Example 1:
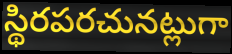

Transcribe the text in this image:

స్థిరపరచునట్లుగా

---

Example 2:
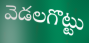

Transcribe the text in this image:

వెడలగొట్టు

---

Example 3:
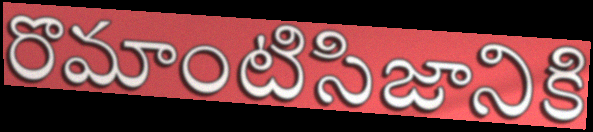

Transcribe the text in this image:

రొమాంటిసిజానికి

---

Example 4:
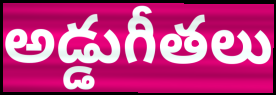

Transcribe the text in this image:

అడ్డుగీతలు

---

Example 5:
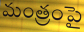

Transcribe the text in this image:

మంత్రంపై